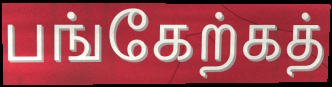
பங்கேற்கத்